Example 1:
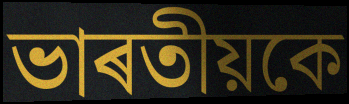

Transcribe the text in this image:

ভাৰতীয়কে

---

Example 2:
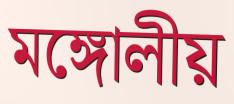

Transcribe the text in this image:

মঙ্গোলীয়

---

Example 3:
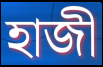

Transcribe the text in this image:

হাজী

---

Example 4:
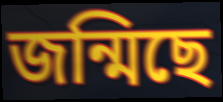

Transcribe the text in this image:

জন্মিছে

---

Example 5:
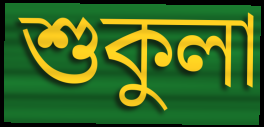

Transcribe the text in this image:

শুকুলা